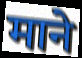
माने